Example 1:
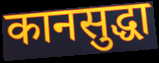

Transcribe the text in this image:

कानसुद्धा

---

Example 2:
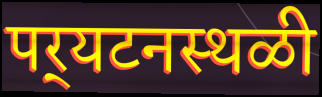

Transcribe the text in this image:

पर्यटनस्थळी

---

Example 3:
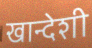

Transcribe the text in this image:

खान्देशी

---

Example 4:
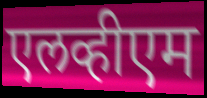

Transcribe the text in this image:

एलव्हीएम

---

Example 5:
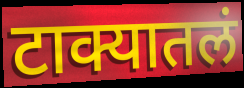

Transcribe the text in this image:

टाक्यातलं